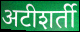
अटीशर्ती